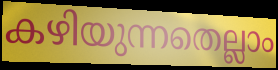
കഴിയുന്നതെല്ലാം